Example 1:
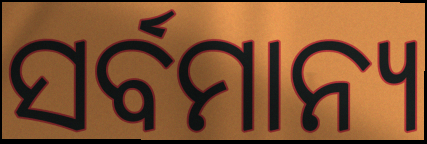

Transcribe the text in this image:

ସର୍ବମାନ୍ୟ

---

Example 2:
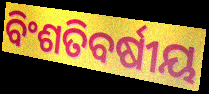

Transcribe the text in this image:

ବିଂଶତିବର୍ଷୀୟ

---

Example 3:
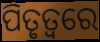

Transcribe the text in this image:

ପିତୃତ୍ୱରେ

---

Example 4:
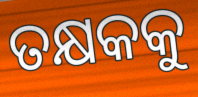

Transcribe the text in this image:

ତକ୍ଷକକୁ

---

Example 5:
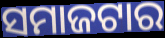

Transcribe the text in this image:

ସମାଜଟାର